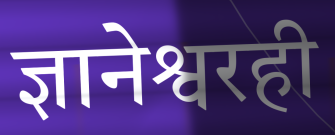
ज्ञानेश्वरही